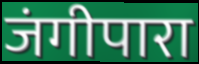
जंगीपारा